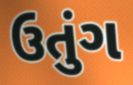
ઉતુંગ